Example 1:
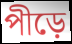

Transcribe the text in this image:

পীড়ে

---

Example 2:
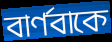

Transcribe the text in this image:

বার্ণবাকে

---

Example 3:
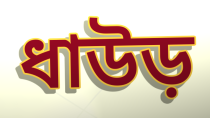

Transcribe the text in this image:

ধাউড়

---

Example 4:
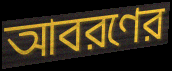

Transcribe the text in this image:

আবরণের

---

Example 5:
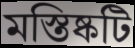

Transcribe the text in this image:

মস্তিষ্কটি